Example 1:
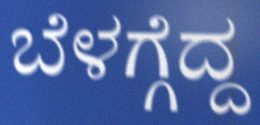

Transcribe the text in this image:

ಬೆಳಗ್ಗೆದ್ದ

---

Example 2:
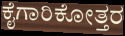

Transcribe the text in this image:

ಕೈಗಾರಿಕೋತ್ತರ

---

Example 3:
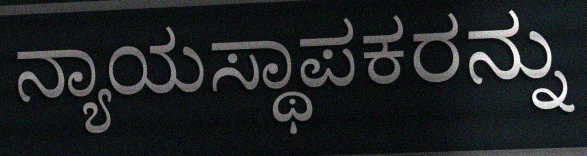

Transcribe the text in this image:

ನ್ಯಾಯಸ್ಥಾಪಕರನ್ನು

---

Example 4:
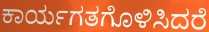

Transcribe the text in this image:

ಕಾರ್ಯಗತಗೊಳಿಸಿದರೆ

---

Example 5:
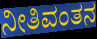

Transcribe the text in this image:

ನೀತಿವಂತನ